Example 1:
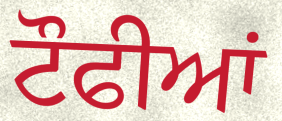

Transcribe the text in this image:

ਟੌਫੀਆਂ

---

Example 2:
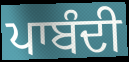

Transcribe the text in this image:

ਪਾਬੰਦੀ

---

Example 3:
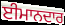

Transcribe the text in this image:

ਈਮਾਨਦਾਰ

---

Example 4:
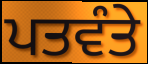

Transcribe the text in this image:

ਪਤਵੰਤੇ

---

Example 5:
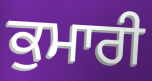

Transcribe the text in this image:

ਕੁਮਾਰੀ